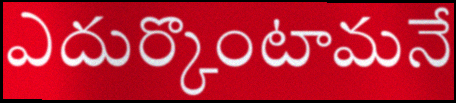
ఎదుర్కొంటామనే